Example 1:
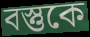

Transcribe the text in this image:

বস্তুকে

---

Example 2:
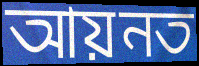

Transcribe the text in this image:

আয়নত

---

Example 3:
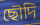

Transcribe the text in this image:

ছৌদি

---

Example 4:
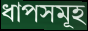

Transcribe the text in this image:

ধাপসমূহ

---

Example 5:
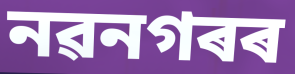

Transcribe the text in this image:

নৱনগৰৰ